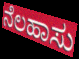
ನೆಲಹಾಸು